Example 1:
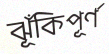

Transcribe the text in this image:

ঝূঁকিপূর্ণ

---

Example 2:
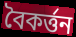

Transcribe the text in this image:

বৈকর্ত্তন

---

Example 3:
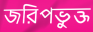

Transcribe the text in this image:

জরিপভুক্ত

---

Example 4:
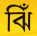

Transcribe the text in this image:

ঝিঁ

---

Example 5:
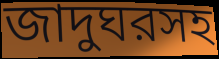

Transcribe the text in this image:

জাদুঘরসহ